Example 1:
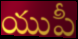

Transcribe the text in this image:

యుపీ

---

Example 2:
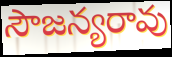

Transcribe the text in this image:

సౌజన్యరావు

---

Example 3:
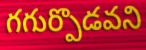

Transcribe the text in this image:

గగుర్పొడవని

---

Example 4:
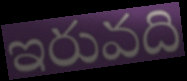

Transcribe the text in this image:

ఇరువది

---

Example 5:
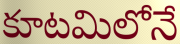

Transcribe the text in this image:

కూటమిలోనే